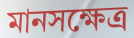
মানসক্ষেত্র